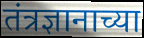
तंत्रज्ञानाच्या